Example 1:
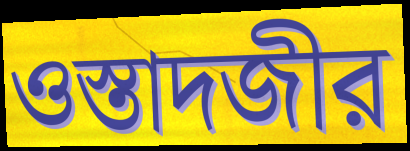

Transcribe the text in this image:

ওস্তাদজীর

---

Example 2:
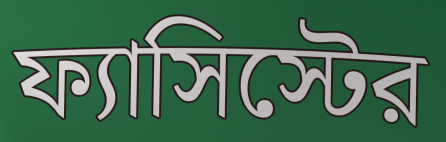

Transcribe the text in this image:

ফ্যাসিস্টের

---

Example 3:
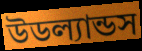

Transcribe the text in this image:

উডল্যান্ডস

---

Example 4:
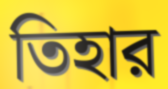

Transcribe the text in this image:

তিহার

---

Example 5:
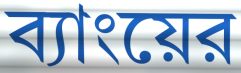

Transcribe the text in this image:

ব্যাংয়ের